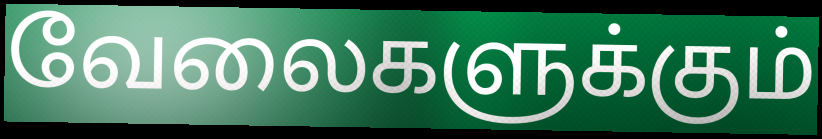
வேலைகளுக்கும்